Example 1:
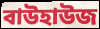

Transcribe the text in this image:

বাউহাউজ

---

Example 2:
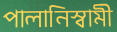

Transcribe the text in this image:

পালানিস্বামী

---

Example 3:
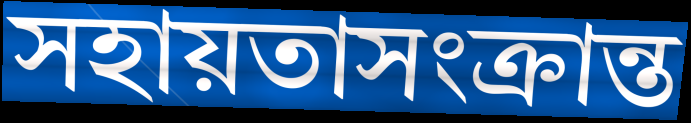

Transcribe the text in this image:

সহায়তাসংক্রান্ত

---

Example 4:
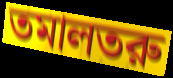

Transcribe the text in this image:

তমালতরু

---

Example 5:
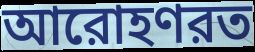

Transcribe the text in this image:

আরোহণরত